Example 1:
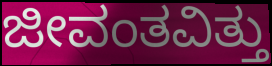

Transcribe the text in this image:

ಜೀವಂತವಿತ್ತು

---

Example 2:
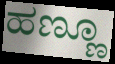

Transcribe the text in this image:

ಹಣ್ಣೂ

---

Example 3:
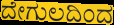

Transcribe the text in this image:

ದೇಗುಲದಿಂದ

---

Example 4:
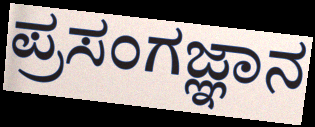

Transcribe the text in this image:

ಪ್ರಸಂಗಜ್ಞಾನ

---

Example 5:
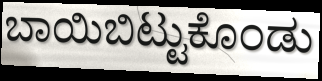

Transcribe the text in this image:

ಬಾಯಿಬಿಟ್ಟುಕೊಂಡು